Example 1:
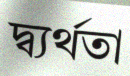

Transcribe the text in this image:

দ্ব্যর্থতা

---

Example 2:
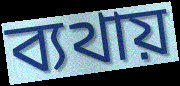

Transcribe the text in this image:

ব্যথায়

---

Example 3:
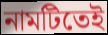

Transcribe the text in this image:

নামটিতেই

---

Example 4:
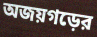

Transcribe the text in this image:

অজয়গড়ের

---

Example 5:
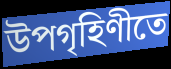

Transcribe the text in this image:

উপগৃহিণীতে